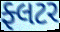
ફ્લટર